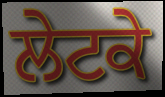
ਲੇਟਕੇ